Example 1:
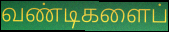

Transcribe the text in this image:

வண்டிகளைப்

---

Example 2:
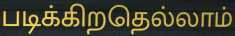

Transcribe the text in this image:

படிக்கிறதெல்லாம்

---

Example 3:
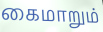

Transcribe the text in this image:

கைமாறும்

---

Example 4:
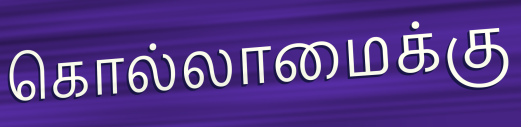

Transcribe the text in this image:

கொல்லாமைக்கு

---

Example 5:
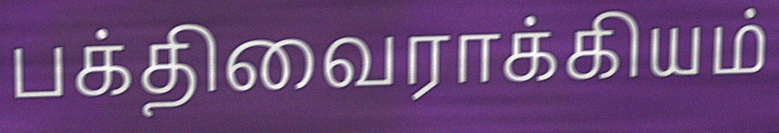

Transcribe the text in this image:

பக்திவைராக்கியம்